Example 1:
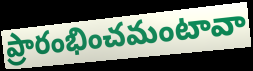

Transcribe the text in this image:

ప్రారంభించమంటావా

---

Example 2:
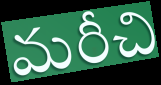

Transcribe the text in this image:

మరీచి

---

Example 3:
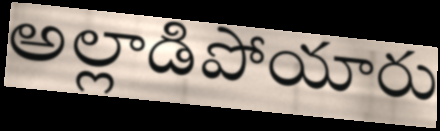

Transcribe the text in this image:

అల్లాడిపోయారు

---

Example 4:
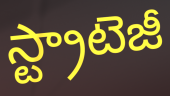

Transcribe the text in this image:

స్ట్రాటెజీ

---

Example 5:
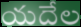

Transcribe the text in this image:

యదేల